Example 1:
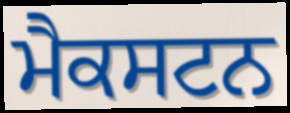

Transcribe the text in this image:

ਮੈਕਸਟਨ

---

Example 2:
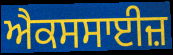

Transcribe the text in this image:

ਐਕਸਸਾਈਜ਼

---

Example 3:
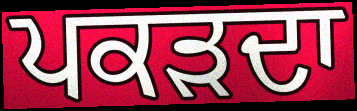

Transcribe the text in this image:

ਪਕੜਦਾ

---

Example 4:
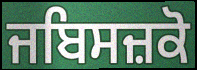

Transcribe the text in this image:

ਜਬਿਸਜ਼ਕੋ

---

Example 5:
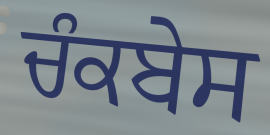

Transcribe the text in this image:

ਚੰਕਬੇਸ